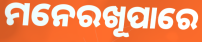
ମନେରଖୂପାରେ